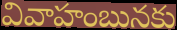
వివాహంబునకు